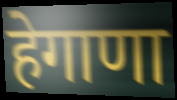
हेगाणा